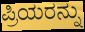
ಪ್ರಿಯರನ್ನು